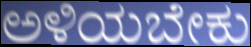
ಅಳಿಯಬೇಕು